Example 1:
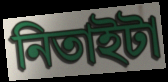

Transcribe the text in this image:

নিতাইটা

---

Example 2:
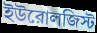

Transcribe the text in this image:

ইউরোলজিস্ট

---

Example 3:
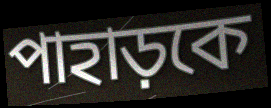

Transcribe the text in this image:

পাহাড়কে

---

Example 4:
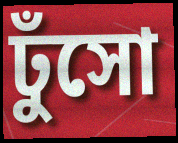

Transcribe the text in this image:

ঢুঁসো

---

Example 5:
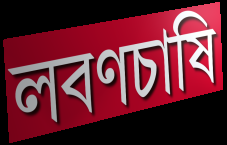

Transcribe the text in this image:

লবণচাষি